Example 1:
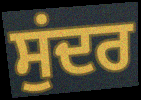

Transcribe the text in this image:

ਸੁਂਦਰ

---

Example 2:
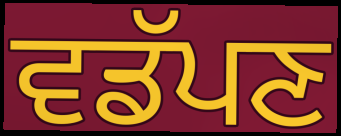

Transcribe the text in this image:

ਵਡੱਪਣ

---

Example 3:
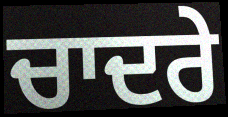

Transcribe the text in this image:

ਚਾਦਰੇ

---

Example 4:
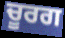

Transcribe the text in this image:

ਚੂਰਗ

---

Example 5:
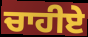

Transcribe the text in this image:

ਚਾਹੀਏ